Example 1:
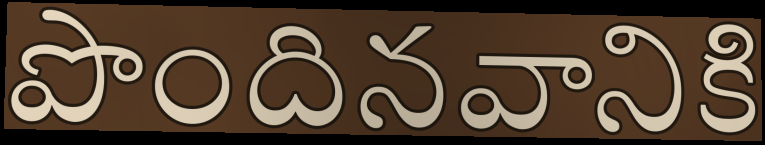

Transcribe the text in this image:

పొందినవానికి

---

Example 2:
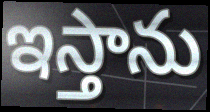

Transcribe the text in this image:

ఇస్తాను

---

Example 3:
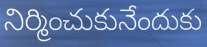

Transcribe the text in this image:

నిర్మించుకునేందుకు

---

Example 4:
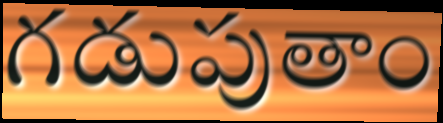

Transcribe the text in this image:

గడుపుతాం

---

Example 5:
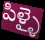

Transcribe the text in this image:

పిళ్ళై